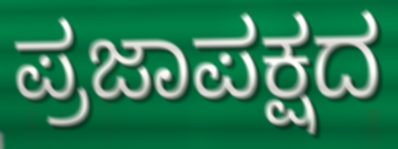
ಪ್ರಜಾಪಕ್ಷದ